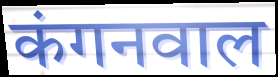
कंगनवाल